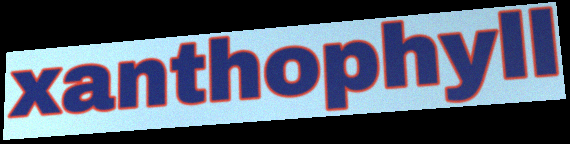
xanthophyll